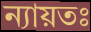
ন্যায়তঃ